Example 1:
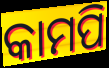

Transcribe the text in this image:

କାମପି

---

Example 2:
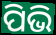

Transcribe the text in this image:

ପିଭି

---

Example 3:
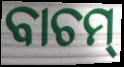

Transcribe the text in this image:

ବାଚମ୍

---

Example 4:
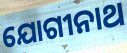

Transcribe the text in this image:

ଯୋଗୀନାଥ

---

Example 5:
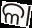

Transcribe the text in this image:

ଳା